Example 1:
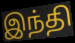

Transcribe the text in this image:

இந்தி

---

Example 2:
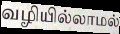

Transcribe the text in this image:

வழியில்லாமல்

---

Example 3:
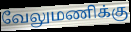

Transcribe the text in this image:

வேலுமணிக்கு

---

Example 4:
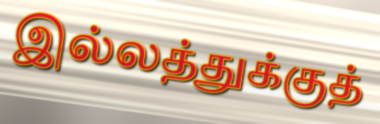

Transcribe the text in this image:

இல்லத்துக்குத்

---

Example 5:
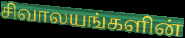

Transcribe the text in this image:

சிவாலயங்களின்